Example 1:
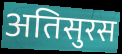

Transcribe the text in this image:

अतिसुरस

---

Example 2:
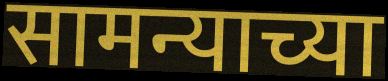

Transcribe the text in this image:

सामन्याच्या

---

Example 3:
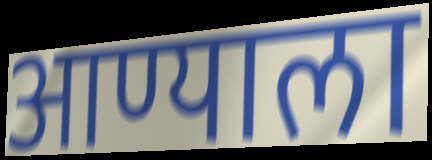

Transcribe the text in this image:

आण्याला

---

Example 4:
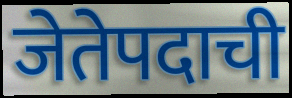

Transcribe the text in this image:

जेतेपदाची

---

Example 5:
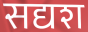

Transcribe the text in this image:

सद्यश